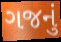
ગજનું